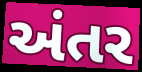
અંતર